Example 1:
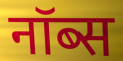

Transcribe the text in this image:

नॉब्स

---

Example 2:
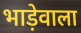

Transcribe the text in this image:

भाड़ेवाला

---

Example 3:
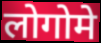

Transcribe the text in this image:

लोगोमे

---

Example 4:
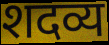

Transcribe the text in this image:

शदव्य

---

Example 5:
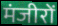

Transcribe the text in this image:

मंजीरों